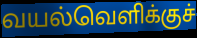
வயல்வெளிக்குச்